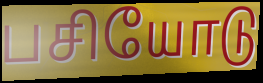
பசியோடு